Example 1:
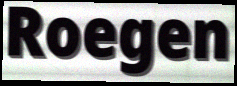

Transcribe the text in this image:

Roegen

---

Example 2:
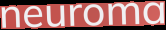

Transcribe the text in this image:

neuroma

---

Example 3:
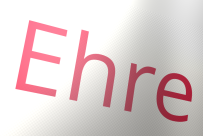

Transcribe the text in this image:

Ehre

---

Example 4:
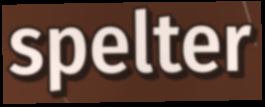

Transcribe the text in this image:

spelter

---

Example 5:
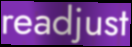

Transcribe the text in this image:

readjust